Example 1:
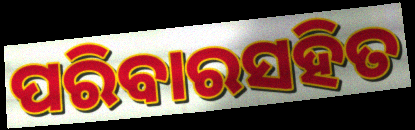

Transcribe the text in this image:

ପରିବାରସହିତ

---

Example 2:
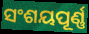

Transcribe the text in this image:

ସଂଶୟପୂର୍ଣ୍ଣ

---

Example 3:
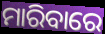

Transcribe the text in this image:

ମାରିବାରେ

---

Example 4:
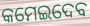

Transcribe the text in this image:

କମେଇଦେବ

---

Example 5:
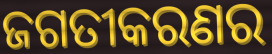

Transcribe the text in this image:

ଜଗତୀକରଣର